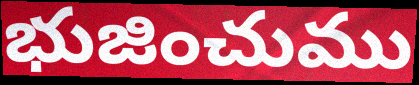
భుజించుము